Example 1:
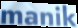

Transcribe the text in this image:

manik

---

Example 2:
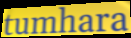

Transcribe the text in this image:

tumhara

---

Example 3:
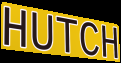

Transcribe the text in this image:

HUTCH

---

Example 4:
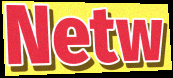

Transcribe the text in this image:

Netw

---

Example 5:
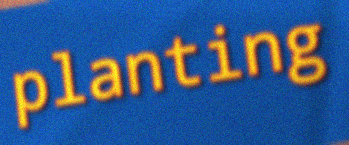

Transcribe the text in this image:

planting